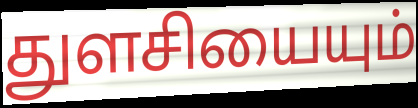
துளசியையும்